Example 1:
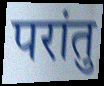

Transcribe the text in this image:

परांतु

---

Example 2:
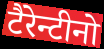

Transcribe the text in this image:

टैरेन्टीनो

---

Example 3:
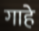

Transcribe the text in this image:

गाहे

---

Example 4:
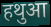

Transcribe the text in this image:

हथुआ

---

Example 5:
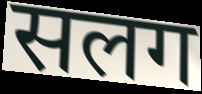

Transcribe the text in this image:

सलग